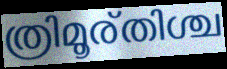
ത്രിമൂര്തിശ്ച